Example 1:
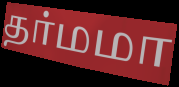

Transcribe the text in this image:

தர்மமா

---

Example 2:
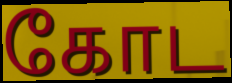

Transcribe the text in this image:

கோட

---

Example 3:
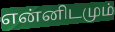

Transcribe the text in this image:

என்னிடமும்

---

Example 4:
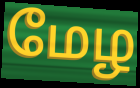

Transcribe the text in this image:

மேழ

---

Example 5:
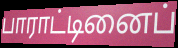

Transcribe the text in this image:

பாராட்டினைப்